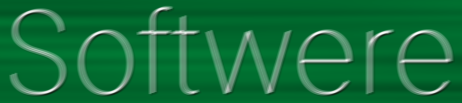
Softwere